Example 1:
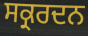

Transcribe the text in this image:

ਸਕ੍ਰਰਦਨ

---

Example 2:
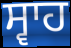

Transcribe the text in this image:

ਸ੍ਵਾਹ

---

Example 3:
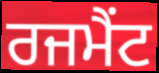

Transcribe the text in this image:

ਰਜਮੈਂਟ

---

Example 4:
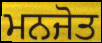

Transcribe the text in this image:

ਮਨਜੋਤ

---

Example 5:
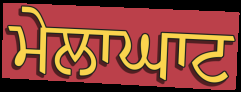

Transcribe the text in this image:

ਮੇਲਾਘਾਟ